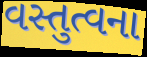
વસ્તુત્વના